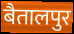
बैतालपुर